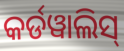
କର୍ଡୱାଲିସ୍